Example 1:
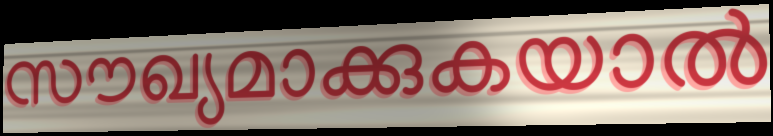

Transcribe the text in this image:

സൗഖ്യമാക്കുകയാൽ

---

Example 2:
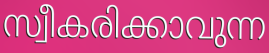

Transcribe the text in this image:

സ്വീകരിക്കാവുന്ന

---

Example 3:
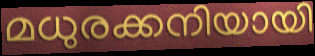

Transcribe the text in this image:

മധുരക്കനിയായി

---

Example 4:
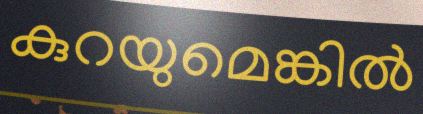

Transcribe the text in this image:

കുറയുമെങ്കിൽ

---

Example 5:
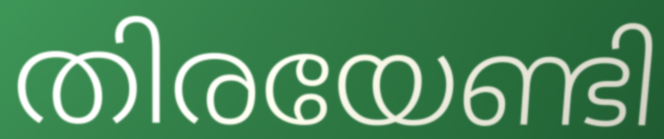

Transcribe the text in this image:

തിരയേണ്ടി